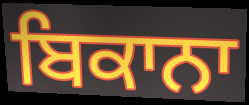
ਬਿਕਾਨਾ